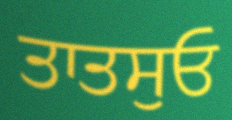
ਤਾਤਸੁਓ